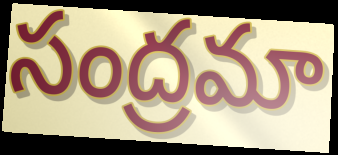
సంద్రమా